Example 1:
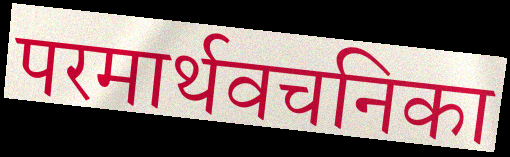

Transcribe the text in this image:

परमार्थवचनिका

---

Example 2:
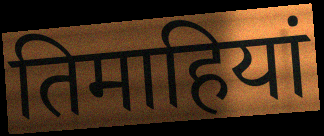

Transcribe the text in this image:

तिमाहियां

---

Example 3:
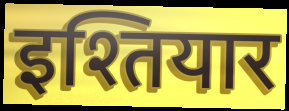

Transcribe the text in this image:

इश्तियार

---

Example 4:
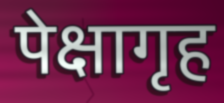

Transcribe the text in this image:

पेक्षागृह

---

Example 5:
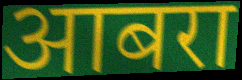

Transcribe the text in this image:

आबरा